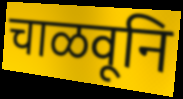
चाळवूनि